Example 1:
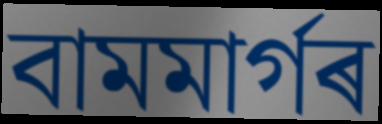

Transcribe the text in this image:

বামমাৰ্গৰ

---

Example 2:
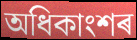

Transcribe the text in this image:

অধিকাংশৰ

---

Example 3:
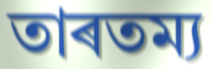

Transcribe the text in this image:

তাৰতম্য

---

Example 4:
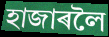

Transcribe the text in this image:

হাজাৰলৈ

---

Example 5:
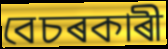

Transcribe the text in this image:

বেচৰকাৰী